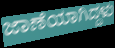
ಜಾಣೆಯಾಗಿದ್ದಳು